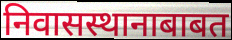
निवासस्थानाबाबत